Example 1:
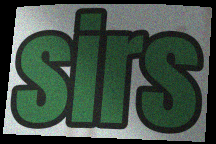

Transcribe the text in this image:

sirs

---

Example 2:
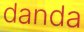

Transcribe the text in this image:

danda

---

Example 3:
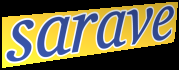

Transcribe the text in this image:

sarave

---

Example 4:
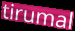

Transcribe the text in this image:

tirumal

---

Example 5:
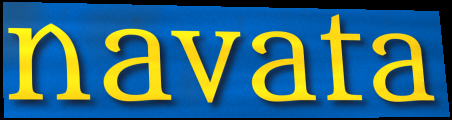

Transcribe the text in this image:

navata